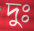
দুঃ